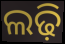
ଲଢ଼ି